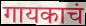
गायकाचं